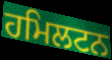
ਹਮਿਲਟਨ